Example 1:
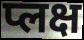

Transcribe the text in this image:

प्लक्ष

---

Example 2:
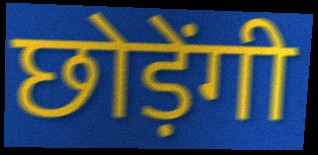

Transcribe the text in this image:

छोड़ेंगी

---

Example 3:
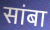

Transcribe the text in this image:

सांबा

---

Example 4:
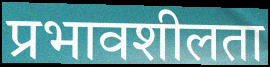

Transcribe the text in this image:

प्रभावशीलता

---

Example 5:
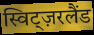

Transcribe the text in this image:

स्विट्ज़रलैंड